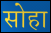
सोहा